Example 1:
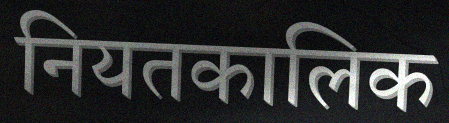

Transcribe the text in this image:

नियतकालिक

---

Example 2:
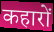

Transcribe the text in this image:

कहारों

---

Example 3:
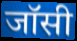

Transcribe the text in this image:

जॉसी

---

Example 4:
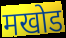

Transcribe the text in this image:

मखोड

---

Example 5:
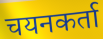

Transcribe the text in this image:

चयनकर्ता